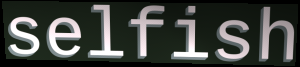
selfish